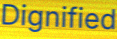
Dignified